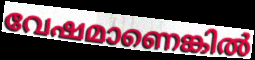
വേഷമാണെങ്കിൽ